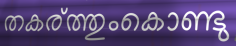
തകര്ത്തുംകൊണ്ടു